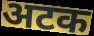
अटक